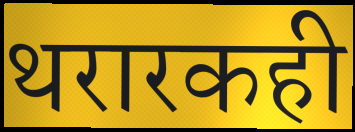
थरारकही